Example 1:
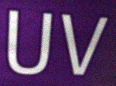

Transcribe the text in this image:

UV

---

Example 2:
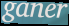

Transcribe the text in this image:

ganer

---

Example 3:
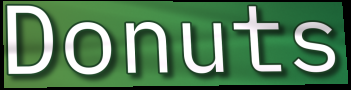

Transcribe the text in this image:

Donuts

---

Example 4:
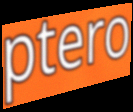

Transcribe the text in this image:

ptero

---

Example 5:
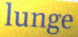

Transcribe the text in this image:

lunge